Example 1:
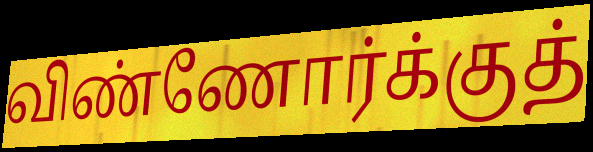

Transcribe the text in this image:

விண்ணோர்க்குத்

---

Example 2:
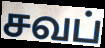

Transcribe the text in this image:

சவப்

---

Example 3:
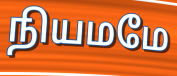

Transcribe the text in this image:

நியமமே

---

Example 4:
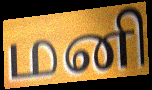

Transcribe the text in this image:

மனி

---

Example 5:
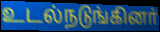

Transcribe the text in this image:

உடல்நடுங்கினர்